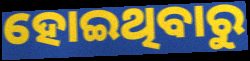
ହୋଇଥିବାରୁ